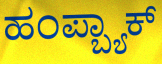
ಹಂಪ್ಬ್ಯಾಕ್